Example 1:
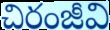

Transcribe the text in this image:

చిరంజీవి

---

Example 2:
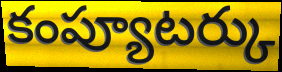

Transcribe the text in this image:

కంప్యూటర్కు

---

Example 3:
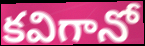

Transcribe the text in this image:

కవిగానో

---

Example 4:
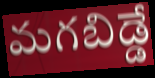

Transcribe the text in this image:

మగబిడ్డే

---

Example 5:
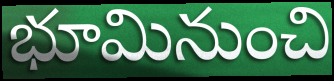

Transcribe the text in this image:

భూమినుంచి